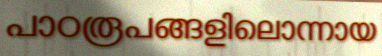
പാഠരൂപങ്ങളിലൊന്നായ